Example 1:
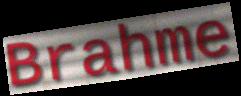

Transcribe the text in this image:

Brahme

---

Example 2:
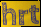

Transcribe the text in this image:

hrt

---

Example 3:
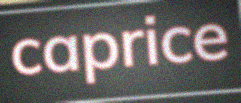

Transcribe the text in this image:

caprice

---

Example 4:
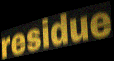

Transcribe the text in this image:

residue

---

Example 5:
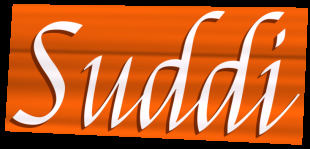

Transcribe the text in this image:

Suddi